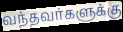
வந்தவர்களுக்கு